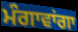
ਮੰਗਾਵਾਂਗਾ